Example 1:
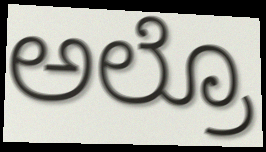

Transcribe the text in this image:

ಅಲ್ರೊ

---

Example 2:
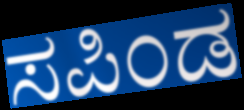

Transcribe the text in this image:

ಸಪಿಂಡ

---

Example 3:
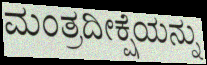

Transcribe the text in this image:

ಮಂತ್ರದೀಕ್ಷೆಯನ್ನು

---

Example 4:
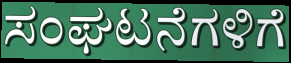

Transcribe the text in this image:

ಸಂಘಟನೆಗಳಿಗೆ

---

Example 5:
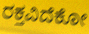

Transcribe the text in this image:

ರಕ್ತವಿದೆಕೋ